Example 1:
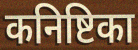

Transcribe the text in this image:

कनिष्टिका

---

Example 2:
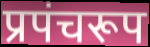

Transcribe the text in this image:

प्रपंचरूप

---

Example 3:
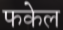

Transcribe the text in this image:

फकेल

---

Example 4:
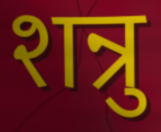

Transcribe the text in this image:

शन्रु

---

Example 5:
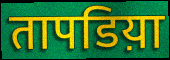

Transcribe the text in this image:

तापडिय़ा